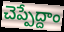
చెప్పేద్దాం